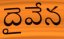
దైవేన